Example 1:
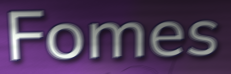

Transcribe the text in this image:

Fomes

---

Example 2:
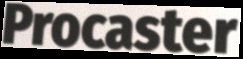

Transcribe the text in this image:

Procaster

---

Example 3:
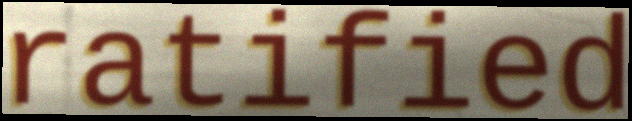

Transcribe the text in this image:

ratified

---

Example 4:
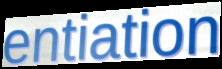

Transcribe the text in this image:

entiation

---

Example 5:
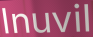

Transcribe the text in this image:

Inuvil